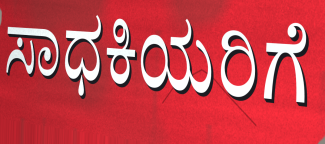
ಸಾಧಕಿಯರಿಗೆ